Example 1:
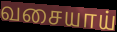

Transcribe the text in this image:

வசையாய்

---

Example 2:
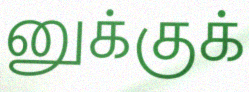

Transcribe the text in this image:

னுக்குக்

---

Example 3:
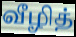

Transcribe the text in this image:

வீழித்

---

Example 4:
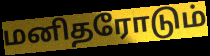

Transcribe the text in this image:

மனிதரோடும்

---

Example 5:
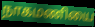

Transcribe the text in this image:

நாகமணியை